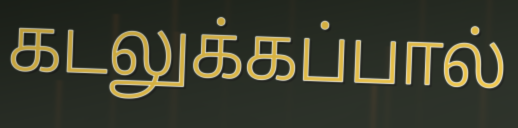
கடலுக்கப்பால்